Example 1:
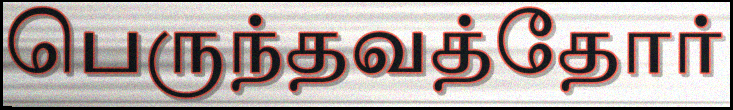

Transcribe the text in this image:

பெருந்தவத்தோர்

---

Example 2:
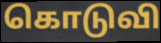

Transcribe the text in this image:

கொடுவி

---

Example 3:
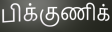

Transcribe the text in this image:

பிக்குணிக்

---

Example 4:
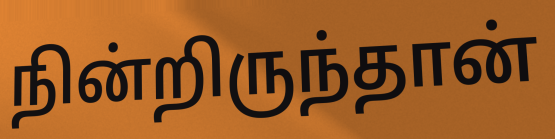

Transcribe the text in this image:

நின்றிருந்தான்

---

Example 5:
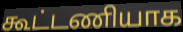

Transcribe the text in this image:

கூட்டணியாக